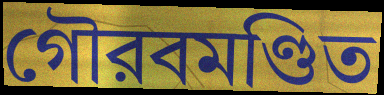
গৌরবমণ্ডিত